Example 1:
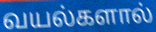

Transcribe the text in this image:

வயல்களால்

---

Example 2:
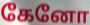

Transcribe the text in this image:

கேனோ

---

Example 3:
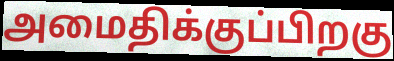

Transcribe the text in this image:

அமைதிக்குப்பிறகு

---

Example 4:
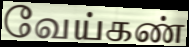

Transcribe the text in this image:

வேய்கண்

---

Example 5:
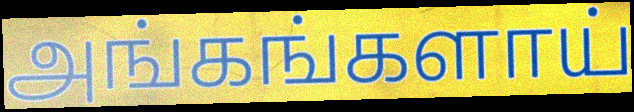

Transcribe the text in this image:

அங்கங்களாய்